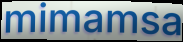
mimamsa